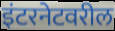
इंटरनेटवरील